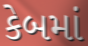
કેબમાં